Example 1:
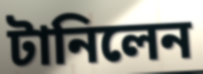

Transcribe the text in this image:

টানিলেন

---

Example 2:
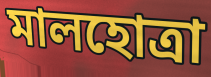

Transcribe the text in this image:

মালহোত্রা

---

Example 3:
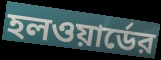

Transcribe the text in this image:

হলওয়ার্ডের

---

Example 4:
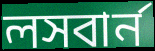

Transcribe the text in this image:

লসবার্ন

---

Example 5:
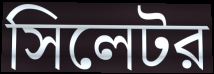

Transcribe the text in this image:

সিলেটর